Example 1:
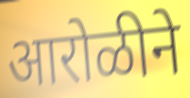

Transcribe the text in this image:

आरोळीने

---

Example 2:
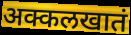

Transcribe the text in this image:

अक्कलखातं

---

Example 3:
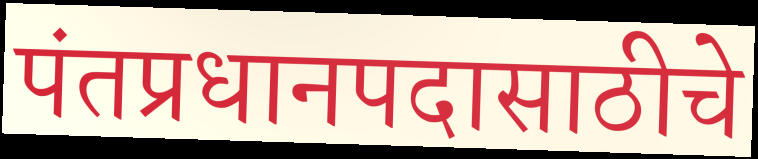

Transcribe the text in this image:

पंतप्रधानपदासाठीचे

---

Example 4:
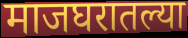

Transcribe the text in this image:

माजघरातल्या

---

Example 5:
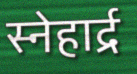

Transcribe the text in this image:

स्नेहार्द्र